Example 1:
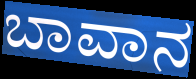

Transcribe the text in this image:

ಬಾವಾನ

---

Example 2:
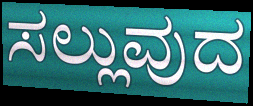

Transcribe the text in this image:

ಸಲ್ಲುವುದ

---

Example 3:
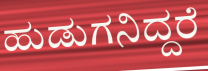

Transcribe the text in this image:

ಹುಡುಗನಿದ್ದರೆ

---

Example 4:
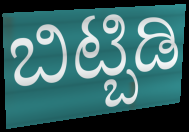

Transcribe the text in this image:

ಬಿಟ್ಬಿಡಿ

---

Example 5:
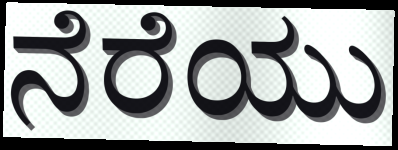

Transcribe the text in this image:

ನೆರೆಯು